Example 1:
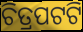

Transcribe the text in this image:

ଚିତ୍ରପଟଟି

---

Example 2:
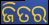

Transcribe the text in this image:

ଜିତର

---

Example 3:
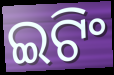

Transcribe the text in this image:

ଇଟିଂ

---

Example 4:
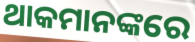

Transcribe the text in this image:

ଥାକମାନଙ୍କରେ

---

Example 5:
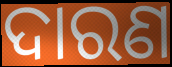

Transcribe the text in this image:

ଦାରଣ